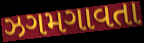
ઝગમગાવતા